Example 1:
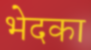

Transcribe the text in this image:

भेदका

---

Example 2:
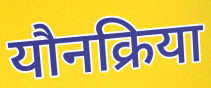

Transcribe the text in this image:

यौनक्रिया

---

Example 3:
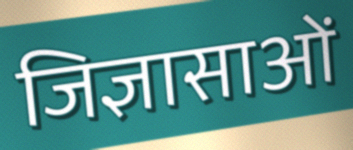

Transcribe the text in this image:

जिज्ञासाओं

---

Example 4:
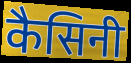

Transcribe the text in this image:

कैसिनी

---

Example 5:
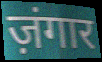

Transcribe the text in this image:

ज़ंगार